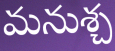
మనుశ్చ